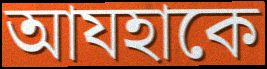
আযহাকে